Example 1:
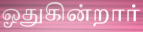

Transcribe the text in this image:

ஓதுகின்றார்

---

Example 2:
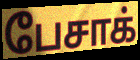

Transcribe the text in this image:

பேசாக்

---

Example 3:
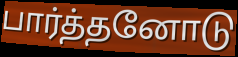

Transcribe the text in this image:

பார்த்தனோடு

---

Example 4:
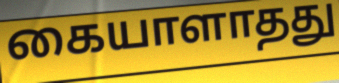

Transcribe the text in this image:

கையாளாதது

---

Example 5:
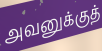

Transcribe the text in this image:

அவனுக்குத்